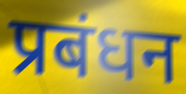
प्रबंधन